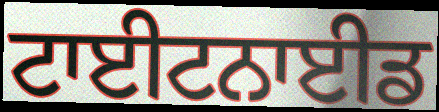
ਟਾਈਟਨਾਈਡ